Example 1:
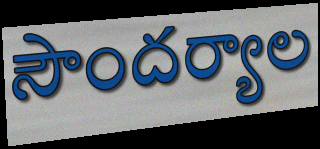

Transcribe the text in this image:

సౌందర్యాల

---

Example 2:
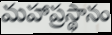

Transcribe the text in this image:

మహాప్రస్థానం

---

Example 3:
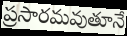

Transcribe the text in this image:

ప్రసారమవుతూనే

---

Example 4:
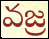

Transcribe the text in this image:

వజ్ర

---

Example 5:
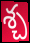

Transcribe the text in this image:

శ్చ